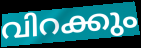
വിറക്കും